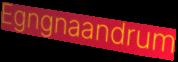
Egngnaandrum